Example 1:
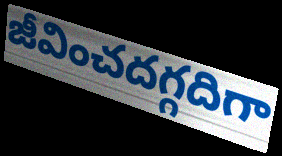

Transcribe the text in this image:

జీవించదగ్గదిగా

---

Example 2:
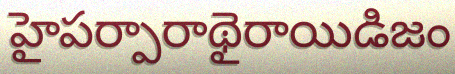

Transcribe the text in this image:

హైపర్పారాథైరాయిడిజం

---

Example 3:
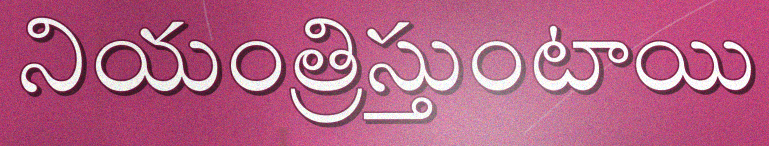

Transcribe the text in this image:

నియంత్రిస్తుంటాయి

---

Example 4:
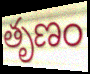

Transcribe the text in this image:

తృణం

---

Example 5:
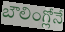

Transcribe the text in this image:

బౌలింగ్లోనే